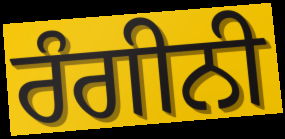
ਰੰਗੀਨੀ